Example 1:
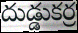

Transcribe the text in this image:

దుడ్డుకర్ర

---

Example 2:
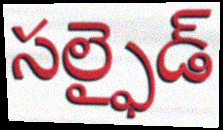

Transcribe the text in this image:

సల్ఫైడ్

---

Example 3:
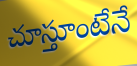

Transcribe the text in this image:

చూస్తూంటేనే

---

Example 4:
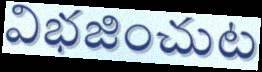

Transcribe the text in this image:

విభజించుట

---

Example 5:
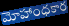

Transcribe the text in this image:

మోహాంధకార